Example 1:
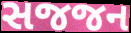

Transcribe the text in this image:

સજજન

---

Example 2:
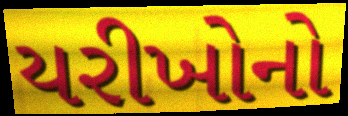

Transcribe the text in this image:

યરીખોનો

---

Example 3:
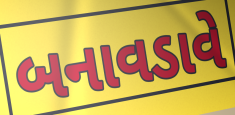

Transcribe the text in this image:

બનાવડાવે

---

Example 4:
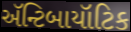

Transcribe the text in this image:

ઍન્ટિબાયૉટિક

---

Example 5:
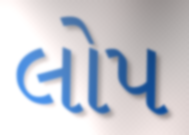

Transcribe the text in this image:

લોપ